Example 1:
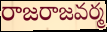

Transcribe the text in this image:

రాజరాజవర్మ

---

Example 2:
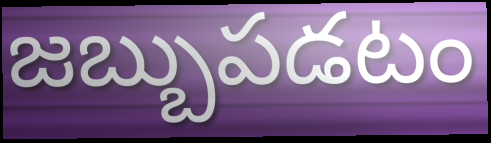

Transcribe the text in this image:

జబ్బుపడటం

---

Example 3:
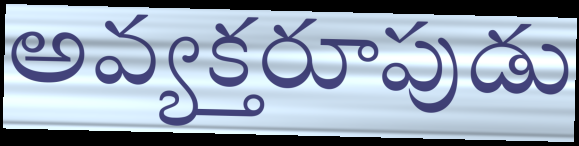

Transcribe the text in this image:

అవ్యక్తరూపుడు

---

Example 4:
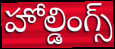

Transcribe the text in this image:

హోల్డింగ్స్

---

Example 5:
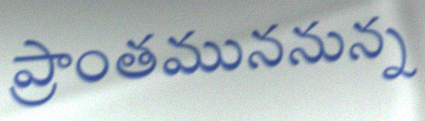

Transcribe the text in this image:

ప్రాంతముననున్న